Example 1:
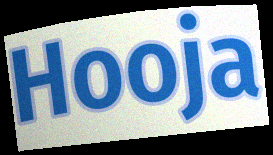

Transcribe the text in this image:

Hooja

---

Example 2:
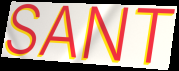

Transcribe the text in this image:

SANT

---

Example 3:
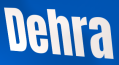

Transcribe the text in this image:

Dehra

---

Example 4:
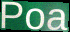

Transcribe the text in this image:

Poa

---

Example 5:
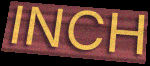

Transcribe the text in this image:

INCH